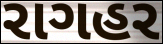
રાગહર